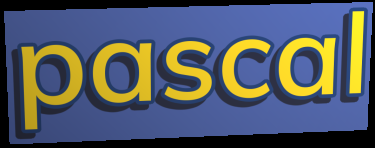
pascal